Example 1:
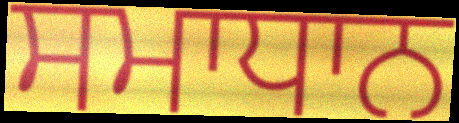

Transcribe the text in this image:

ਸਮਾਧਾਨ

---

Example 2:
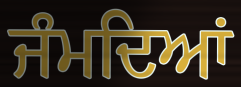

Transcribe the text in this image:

ਜੰਮਦਿਆਂ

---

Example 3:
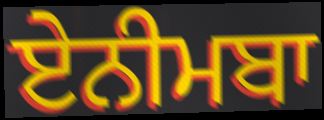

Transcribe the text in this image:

ਏਨੀਮਬਾ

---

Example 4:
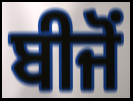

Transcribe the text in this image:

ਬੀਜੋਂ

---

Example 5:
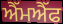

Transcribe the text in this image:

ਐੱਮਐੱਫ